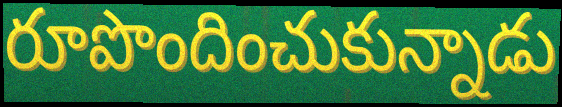
రూపొందించుకున్నాడు